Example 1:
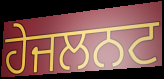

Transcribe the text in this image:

ਹੇਜਲਨਟ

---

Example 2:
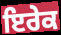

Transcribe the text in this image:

ਇਰੇਕ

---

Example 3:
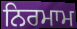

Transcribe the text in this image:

ਨਿਰਮਾਮ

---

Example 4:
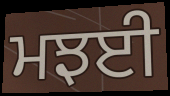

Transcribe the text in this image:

ਮਝਈ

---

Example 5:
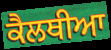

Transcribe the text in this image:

ਕੈਲਥੀਆ